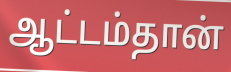
ஆட்டம்தான்